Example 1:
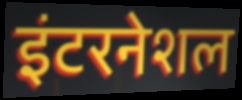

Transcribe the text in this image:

इंटरनेशल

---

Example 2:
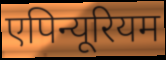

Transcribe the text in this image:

एपिन्यूरियम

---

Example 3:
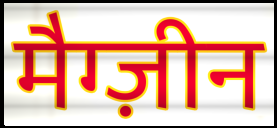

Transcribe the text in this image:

मैग्ज़ीन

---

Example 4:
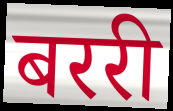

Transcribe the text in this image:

बररी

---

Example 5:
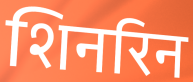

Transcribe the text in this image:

शिनरिन